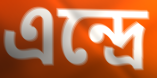
এন্দ্ৰে